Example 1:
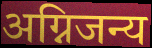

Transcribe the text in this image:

अग्निजन्य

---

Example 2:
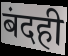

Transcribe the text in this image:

बंदही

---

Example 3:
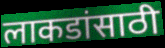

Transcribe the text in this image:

लाकडांसाठी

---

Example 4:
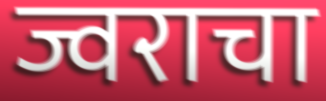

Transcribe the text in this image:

ज्वराचा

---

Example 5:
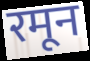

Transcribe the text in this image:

रमून